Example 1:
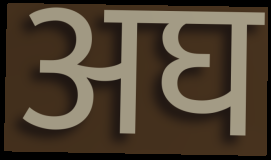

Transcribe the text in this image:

अघ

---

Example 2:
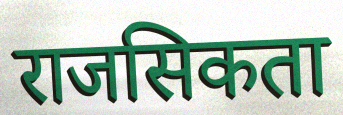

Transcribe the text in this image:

राजसिकता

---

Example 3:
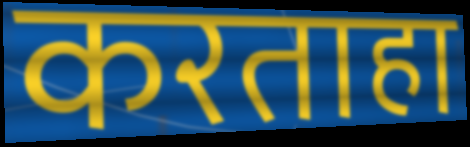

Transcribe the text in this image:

करताहा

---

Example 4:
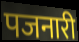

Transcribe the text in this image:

पजनारी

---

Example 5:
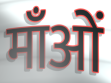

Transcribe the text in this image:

माँओं